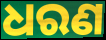
ଧରଣ